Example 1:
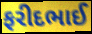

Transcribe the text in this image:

ફરીદભાઈ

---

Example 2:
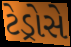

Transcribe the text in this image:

ટેડ્રોસે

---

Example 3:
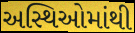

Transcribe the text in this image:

અસ્થિઓમાંથી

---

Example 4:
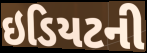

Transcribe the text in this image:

ઇડિયટની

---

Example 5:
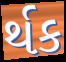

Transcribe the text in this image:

ર્થક